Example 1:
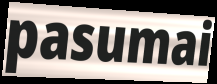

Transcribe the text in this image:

pasumai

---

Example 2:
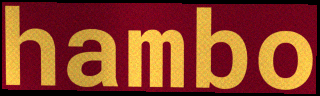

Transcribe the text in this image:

hambo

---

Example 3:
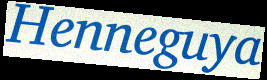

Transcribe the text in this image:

Henneguya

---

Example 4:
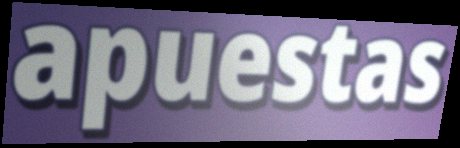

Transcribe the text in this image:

apuestas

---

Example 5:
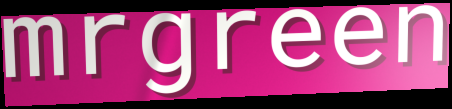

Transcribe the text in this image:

mrgreen